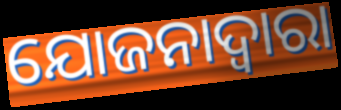
ଯୋଜନାଦ୍ୱାରା